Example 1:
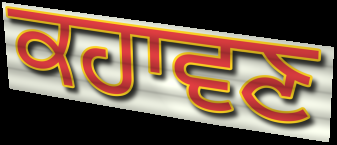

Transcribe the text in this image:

ਕਹਾਵਣ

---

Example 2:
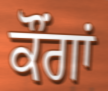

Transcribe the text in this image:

ਕੌਂਗਾਂ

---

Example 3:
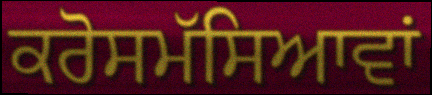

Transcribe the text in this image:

ਕਰੋਸਮੱਸਿਆਵਾਂ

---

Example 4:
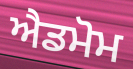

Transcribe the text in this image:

ਐਡਮੋਮ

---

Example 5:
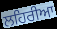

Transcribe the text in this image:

ਲਹਿਰੀਆ